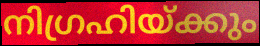
നിഗ്രഹിയ്ക്കും